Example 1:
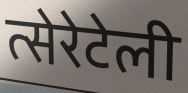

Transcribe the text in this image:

त्सेरेटेली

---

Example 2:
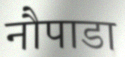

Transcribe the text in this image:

नौपाडा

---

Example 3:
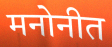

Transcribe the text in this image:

मनोनीत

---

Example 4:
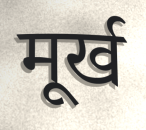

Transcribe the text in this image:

मूर्ख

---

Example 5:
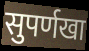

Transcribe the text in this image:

सुपर्णखा